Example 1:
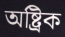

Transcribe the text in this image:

অষ্ট্ৰিক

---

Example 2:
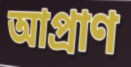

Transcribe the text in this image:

আপ্ৰাণ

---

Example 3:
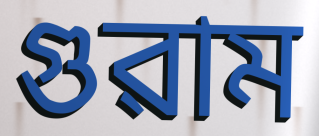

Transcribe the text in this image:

গুৱাম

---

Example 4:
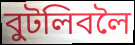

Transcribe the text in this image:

বুটলিবলৈ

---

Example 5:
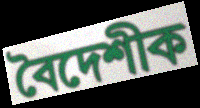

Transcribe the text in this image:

বৈদেশীক